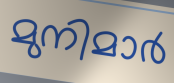
മുനിമാർ